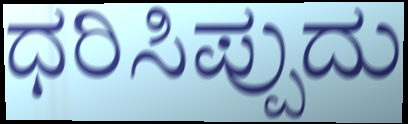
ಧರಿಸಿಪ್ಪುದು